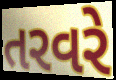
તરવરે